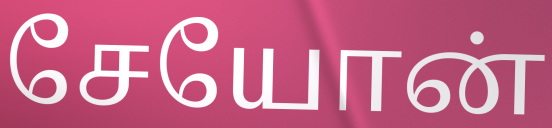
சேயோன்